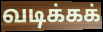
வடிக்கக்